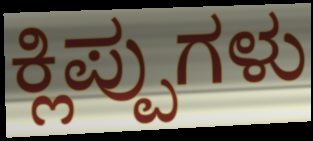
ಕ್ಲಿಪ್ಪುಗಳು